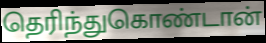
தெரிந்துகொண்டான்